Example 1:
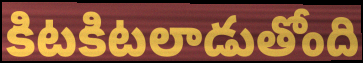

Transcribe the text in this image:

కిటకిటలాడుతోంది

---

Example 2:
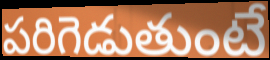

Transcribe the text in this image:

పరిగెడుతుంటే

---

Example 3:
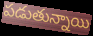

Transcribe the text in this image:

పడుతున్నాయి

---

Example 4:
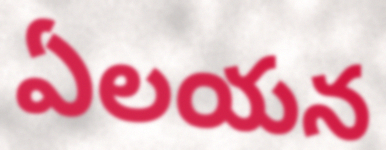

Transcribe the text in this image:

ఏలయన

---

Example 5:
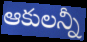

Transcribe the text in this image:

ఆకులన్నీ